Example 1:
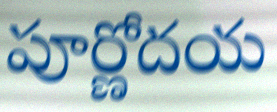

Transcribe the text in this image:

పూర్ణోదయ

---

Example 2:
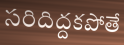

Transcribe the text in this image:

సరిదిద్దకపోతే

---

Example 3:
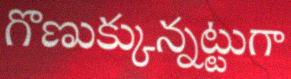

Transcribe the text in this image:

గొణుక్కున్నట్టుగా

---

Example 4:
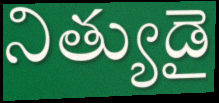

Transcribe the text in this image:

నిత్యుడై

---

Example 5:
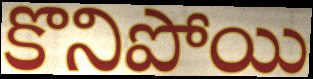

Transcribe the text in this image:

కొనిపోయి